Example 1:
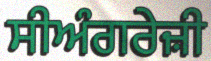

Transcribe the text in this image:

ਸੀਅੰਗਰੇਜ਼ੀ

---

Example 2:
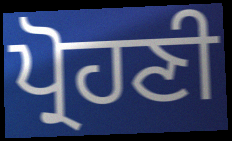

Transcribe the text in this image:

ਪ੍ਰੋਹਣੀ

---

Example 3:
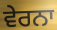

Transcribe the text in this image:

ਵੇਰਨਾ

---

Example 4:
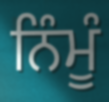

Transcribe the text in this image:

ਨਿੰਮੂੰ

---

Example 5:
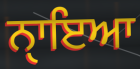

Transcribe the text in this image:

ਨੑਾਇਆ